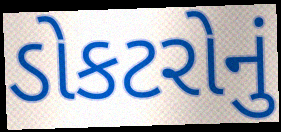
ડોકટરોનું